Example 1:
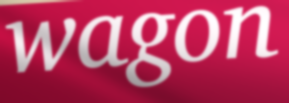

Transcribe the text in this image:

wagon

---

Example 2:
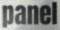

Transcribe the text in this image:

panel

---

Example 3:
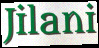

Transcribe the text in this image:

Jilani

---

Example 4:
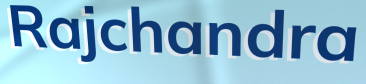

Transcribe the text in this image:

Rajchandra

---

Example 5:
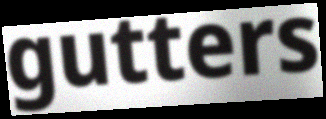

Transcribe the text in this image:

gutters